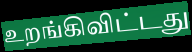
உறங்கிவிட்டது